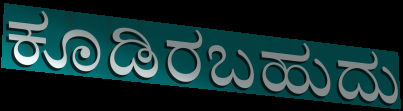
ಕೂಡಿರಬಹುದು